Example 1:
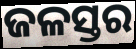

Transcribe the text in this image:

ଜଳସ୍ତର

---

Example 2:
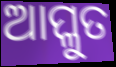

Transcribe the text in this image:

ଆପ୍ଳୁତ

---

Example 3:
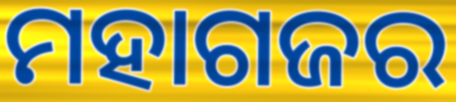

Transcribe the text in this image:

ମହାଗଜର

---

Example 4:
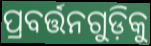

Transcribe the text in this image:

ପ୍ରବର୍ତ୍ତନଗୁଡ଼ିକୁ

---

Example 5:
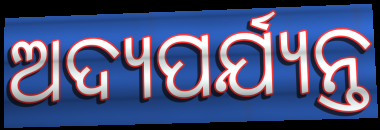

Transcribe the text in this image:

ଅଦ୍ୟପର୍ଯ୍ୟନ୍ତ